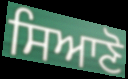
ਸਿਆਣੋ